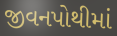
જીવનપોથીમાં